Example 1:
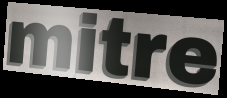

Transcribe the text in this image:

mitre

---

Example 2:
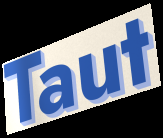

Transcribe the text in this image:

Taut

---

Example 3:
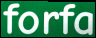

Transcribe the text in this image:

forfa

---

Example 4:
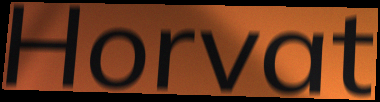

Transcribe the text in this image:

Horvat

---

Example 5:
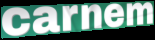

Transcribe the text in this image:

carnem